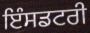
ਇੰਸਡਟਰੀ